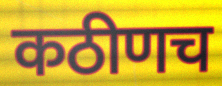
कठीणच